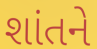
શાંતને